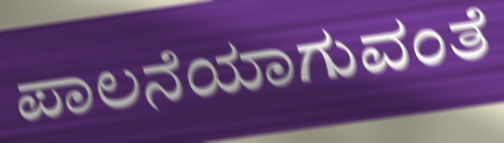
ಪಾಲನೆಯಾಗುವಂತೆ